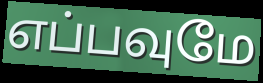
எப்பவுமே